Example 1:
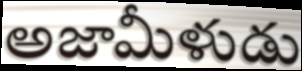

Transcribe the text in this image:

అజామీళుడు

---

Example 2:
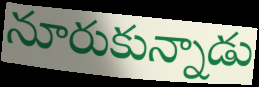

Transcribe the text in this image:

నూరుకున్నాడు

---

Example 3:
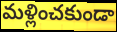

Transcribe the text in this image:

మళ్లించకుండా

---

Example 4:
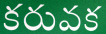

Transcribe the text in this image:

కరువక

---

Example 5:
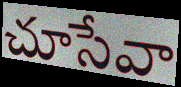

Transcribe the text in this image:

చూసేవా